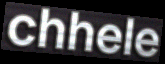
chhele